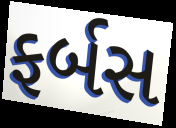
ફર્બસ